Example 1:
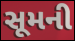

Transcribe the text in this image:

સૂમની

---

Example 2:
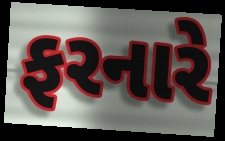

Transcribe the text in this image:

ફરનારે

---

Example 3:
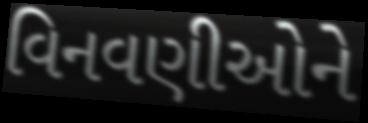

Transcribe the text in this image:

વિનવણીઓને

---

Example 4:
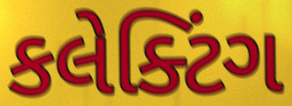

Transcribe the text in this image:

કલેક્ટિંગ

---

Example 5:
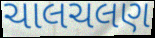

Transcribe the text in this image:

ચાલચલણ